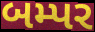
બમ્પર